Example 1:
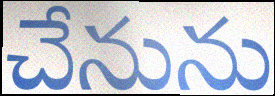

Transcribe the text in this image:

చేనును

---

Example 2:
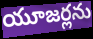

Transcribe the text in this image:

యూజర్లను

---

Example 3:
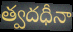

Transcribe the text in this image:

త్వదధీనా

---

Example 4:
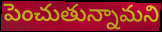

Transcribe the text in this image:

పెంచుతున్నామని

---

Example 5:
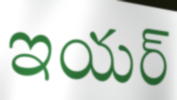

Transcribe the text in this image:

ఇయర్